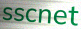
sscnet